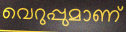
വെറുപ്പുമാണ്